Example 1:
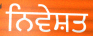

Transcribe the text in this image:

ਨਿਵੇਸ਼ਤ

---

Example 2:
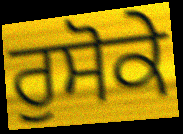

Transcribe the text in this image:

ਰੁਸੋਕੇ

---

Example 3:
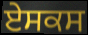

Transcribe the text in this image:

ਏਸਕਸ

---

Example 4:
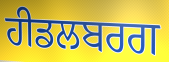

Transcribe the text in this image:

ਹੀਡਲਬਰਗ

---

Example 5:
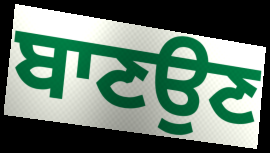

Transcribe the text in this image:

ਬਾਣਉਣ